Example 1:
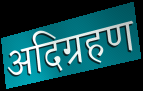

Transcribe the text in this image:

अदिग्रहण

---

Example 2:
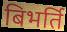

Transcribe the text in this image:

बिभर्ति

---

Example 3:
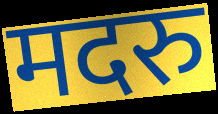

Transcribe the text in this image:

मदरु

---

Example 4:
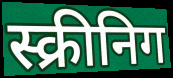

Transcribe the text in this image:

स्क्रीनिग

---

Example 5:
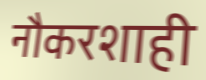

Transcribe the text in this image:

नौकरशाही